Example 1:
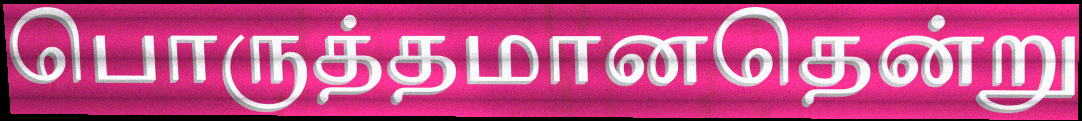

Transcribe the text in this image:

பொருத்தமானதென்று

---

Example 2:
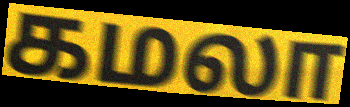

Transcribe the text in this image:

கமலா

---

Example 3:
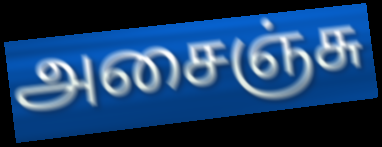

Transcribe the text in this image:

அசைஞ்சு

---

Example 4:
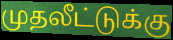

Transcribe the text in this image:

முதலீட்டுக்கு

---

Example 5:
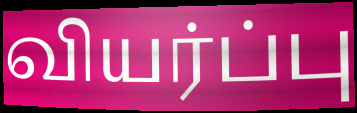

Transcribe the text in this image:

வியர்ப்பு